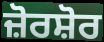
ਜ਼ੋਰਸ਼ੋਰ